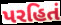
પરહિતં